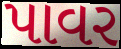
પાવર